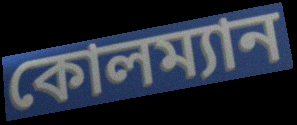
কোলম্যান